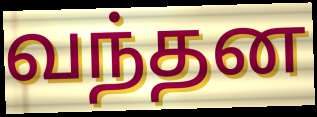
வந்தன